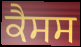
ਕੈਸਸ